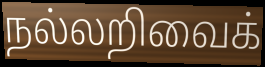
நல்லறிவைக்